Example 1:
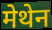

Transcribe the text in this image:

मेथेन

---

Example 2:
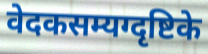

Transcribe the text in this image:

वेदकसम्यग्दृष्टिके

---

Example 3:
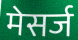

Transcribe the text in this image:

मेसर्ज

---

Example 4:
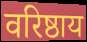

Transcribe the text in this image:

वरिष्ठाय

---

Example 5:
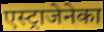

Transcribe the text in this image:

एस्‍ट्राजेनेका